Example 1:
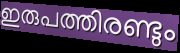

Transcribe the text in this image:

ഇരുപത്തിരണ്ടും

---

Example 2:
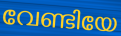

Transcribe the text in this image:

വേണ്ടിയേ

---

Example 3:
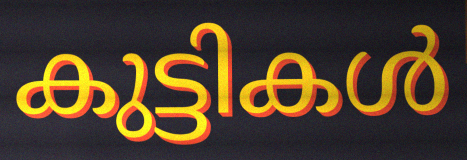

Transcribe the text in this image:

കുട്ടികൾ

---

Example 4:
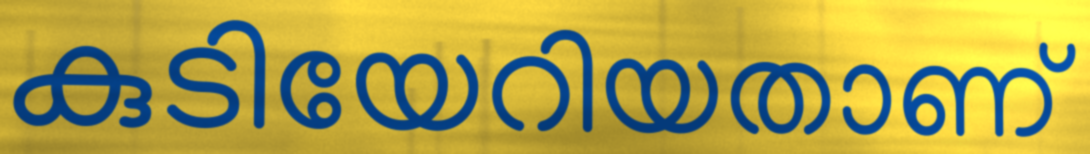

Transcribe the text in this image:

കുടിയേറിയതാണ്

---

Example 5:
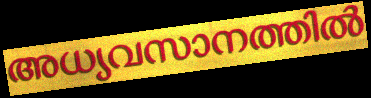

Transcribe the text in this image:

അധ്യവസാനത്തിൽ